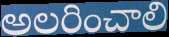
అలరించాలి